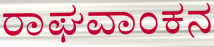
ರಾಘವಾಂಕನ